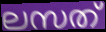
ലസത്